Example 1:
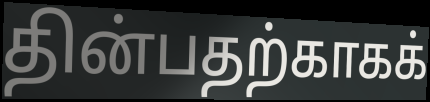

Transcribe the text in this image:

தின்பதற்காகக்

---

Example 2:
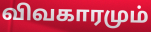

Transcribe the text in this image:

விவகாரமும்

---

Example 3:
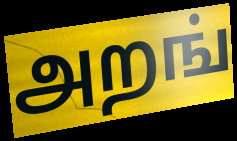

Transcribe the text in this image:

அறங்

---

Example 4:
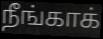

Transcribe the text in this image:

நீங்காக்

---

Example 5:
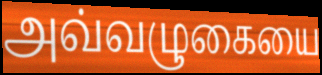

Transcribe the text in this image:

அவ்வழுகையை